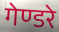
गेण्डरे